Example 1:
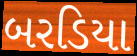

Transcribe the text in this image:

બરડિયા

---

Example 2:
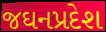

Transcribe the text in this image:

જઘનપ્રદેશ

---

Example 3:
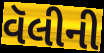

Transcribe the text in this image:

વૅલીની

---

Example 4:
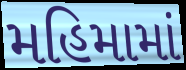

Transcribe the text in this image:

મહિમામાં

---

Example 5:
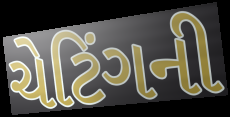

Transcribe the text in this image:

ચેટિંગની